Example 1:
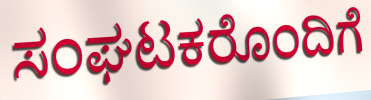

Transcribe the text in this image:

ಸಂಘಟಕರೊಂದಿಗೆ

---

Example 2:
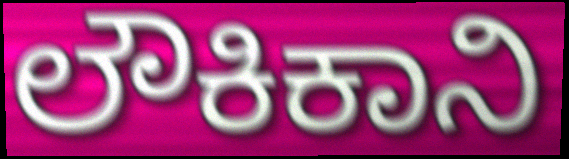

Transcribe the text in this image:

ಲೌಕಿಕಾನಿ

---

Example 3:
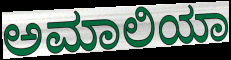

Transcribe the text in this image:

ಅಮಾಲಿಯಾ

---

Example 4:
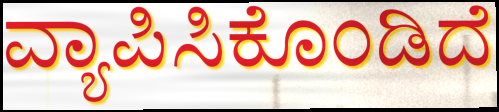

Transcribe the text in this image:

ವ್ಯಾಪಿಸಿಕೊಂಡಿದೆ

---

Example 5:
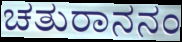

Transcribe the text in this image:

ಚತುರಾನನಂ